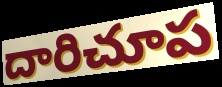
దారిచూప